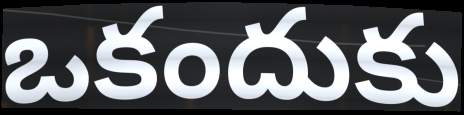
ఒకందుకు